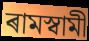
ৰামস্বামী